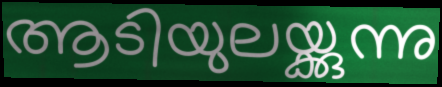
ആടിയുലയ്ക്കുന്നു